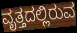
ವೃತ್ತದಲ್ಲಿರುವ